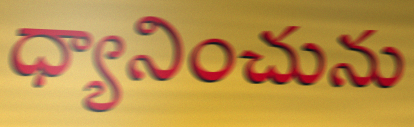
ధ్యానించును